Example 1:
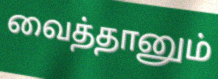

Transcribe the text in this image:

வைத்தானும்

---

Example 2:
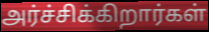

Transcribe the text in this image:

அர்ச்சிக்கிறார்கள்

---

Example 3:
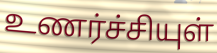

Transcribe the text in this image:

உணர்ச்சியுள்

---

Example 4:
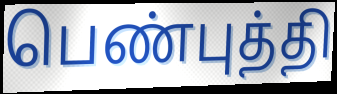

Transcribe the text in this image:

பெண்புத்தி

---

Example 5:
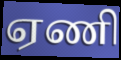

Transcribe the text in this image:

ஏணி